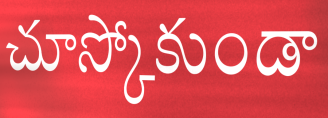
చూస్కోకుండా